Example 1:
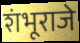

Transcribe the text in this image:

शंभूराजे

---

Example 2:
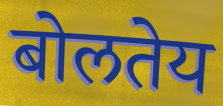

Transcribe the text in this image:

बोलतेय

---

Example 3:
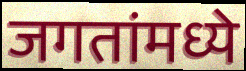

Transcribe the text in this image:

जगतांमध्ये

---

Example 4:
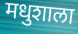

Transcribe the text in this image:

मधुशाला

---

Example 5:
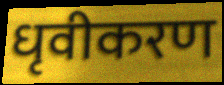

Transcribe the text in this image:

धृवीकरण